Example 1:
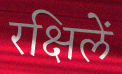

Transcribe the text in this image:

रक्षिलें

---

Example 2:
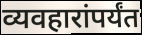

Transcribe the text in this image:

व्यवहारांपर्यंत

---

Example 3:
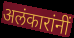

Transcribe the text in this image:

अलंकारांनीं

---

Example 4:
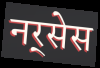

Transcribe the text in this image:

नर्सेस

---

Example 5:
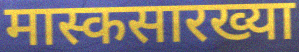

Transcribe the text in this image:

मास्कसारख्या